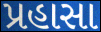
પ્રહાસા